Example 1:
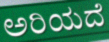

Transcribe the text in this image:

ಅರಿಯದೆ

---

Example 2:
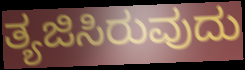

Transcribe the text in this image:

ತ್ಯಜಿಸಿರುವುದು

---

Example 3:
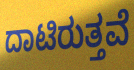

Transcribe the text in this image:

ದಾಟಿರುತ್ತವೆ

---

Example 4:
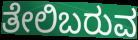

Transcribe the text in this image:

ತೇಲಿಬರುವ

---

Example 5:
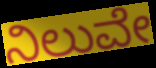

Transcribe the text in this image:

ನಿಲುವೇ